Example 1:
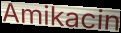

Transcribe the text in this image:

Amikacin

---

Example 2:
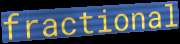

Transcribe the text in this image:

fractional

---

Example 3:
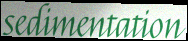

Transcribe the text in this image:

sedimentation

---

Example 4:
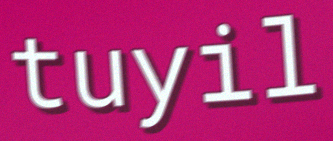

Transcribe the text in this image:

tuyil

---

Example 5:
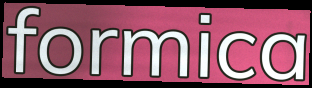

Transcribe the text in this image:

formica